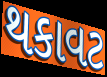
થકાવટ